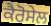
ਕੈਰੋਸੇਲ